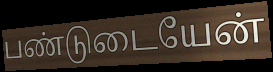
பண்டுடையேன்